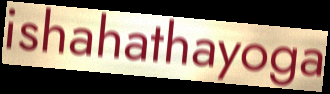
ishahathayoga